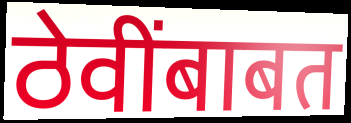
ठेवींबाबत